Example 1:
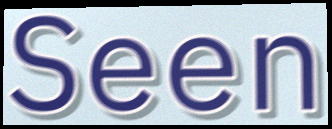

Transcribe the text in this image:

Seen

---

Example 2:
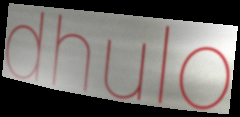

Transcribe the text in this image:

dhulo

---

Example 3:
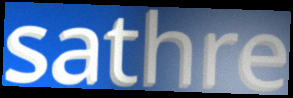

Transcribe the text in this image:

sathre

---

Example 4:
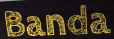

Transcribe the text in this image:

Banda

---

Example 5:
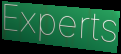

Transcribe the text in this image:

Experts